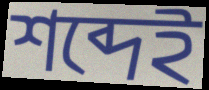
শব্দেই